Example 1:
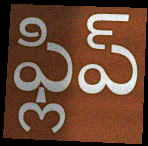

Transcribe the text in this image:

ఫ్లిప్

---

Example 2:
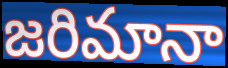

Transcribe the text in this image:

జరిమానా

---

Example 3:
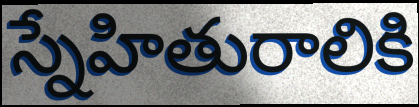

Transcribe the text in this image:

స్నేహితురాలికి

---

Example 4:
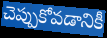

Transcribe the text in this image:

చెప్పుకోవడానికీ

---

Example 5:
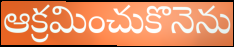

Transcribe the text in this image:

ఆక్రమించుకొనెను